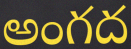
అంగద